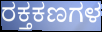
ರಕ್ತಕಣಗಳ